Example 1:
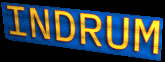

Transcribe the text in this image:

INDRUM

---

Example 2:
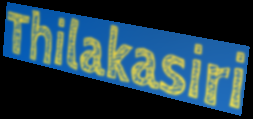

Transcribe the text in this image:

Thilakasiri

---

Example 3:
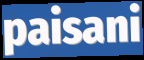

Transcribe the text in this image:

paisani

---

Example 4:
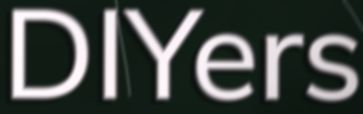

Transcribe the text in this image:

DIYers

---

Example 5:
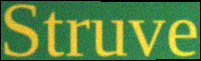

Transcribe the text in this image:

Struve